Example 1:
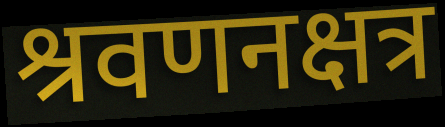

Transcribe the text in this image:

श्रवणनक्षत्र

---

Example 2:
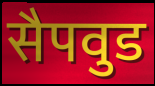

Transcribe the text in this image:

सैपवुड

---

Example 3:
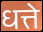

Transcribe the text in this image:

धत्ते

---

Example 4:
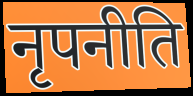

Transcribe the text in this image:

नृपनीति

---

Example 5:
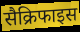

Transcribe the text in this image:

सैक्रिफाइस